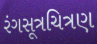
રંગસૂત્રચિત્રણ